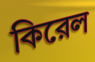
কিরেল